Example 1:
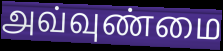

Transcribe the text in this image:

அவ்வுண்மை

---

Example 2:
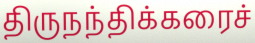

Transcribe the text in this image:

திருநந்திக்கரைச்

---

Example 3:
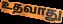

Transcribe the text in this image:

உதவாது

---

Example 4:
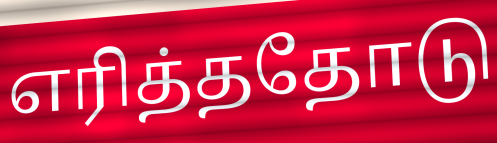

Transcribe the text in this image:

எரித்ததோடு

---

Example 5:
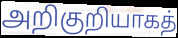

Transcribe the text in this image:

அறிகுறியாகத்